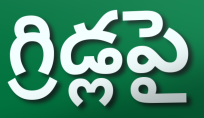
గ్రిడ్లపై